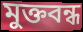
মুক্তবন্ধ